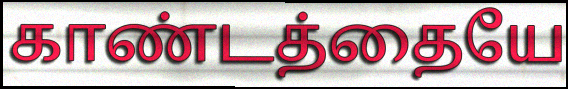
காண்டத்தையே